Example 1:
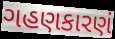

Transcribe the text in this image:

ગહણકારણં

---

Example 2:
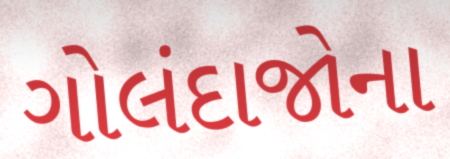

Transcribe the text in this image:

ગોલંદાજોના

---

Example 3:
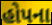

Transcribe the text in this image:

હોપના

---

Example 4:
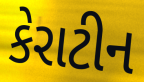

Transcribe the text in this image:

કેરાટીન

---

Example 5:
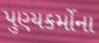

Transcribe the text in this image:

પુણ્યકર્મોના